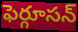
ఫెర్గూసన్